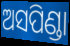
ଅସପିଣ୍ଡା